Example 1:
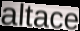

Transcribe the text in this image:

altace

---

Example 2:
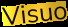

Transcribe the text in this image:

Visuo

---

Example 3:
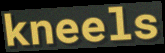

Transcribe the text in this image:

kneels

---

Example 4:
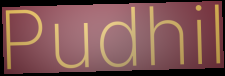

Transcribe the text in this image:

Pudhil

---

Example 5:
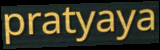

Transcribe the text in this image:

pratyaya